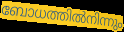
ബോധത്തിൽനിന്നും